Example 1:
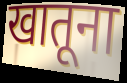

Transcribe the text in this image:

खातूना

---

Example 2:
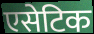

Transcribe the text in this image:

एसेटिक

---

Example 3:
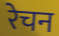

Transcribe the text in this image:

रेचन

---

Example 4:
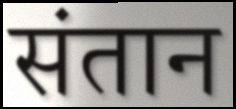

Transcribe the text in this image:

संतान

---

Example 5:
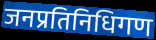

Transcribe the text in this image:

जनप्रतिनिधिगण